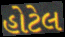
હોટેલ